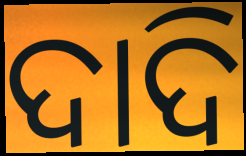
ଦାଦି